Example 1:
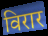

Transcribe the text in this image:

विरार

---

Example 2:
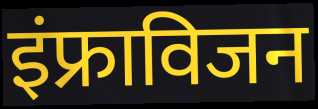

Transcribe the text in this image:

इंफ्राविजन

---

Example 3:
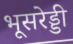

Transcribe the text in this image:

भूसरेड्डी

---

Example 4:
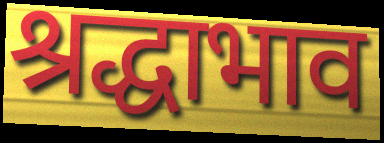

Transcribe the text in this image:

श्रद्धाभाव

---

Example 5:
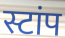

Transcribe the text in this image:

स्टांप